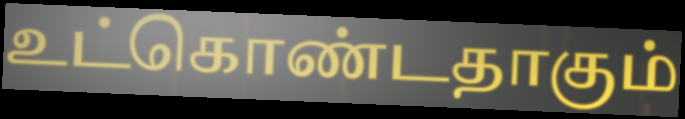
உட்கொண்டதாகும்